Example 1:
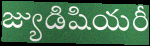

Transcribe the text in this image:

జ్యుడిషియరీ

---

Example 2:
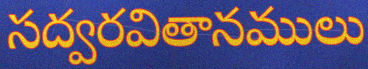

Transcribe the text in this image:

సద్వరవితానములు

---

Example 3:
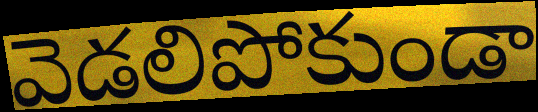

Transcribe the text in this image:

వెడలిపోకుండా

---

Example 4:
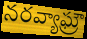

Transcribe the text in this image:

నరవ్యాఘ్రౌ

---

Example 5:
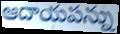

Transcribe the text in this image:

ఆదాయపన్ను